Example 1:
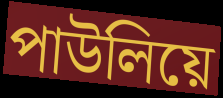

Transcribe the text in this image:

পাউলিয়ে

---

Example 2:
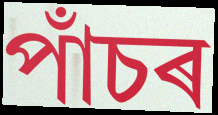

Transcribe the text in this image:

পাঁচৰ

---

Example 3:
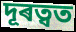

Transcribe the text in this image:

দূৰত্বত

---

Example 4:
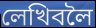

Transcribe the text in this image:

লেখিবলৈ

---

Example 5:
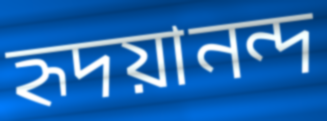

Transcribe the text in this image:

হৃদয়ানন্দ